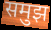
समुझ